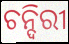
ଚନ୍ଦିରୀ